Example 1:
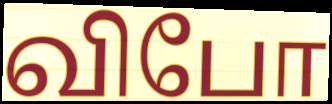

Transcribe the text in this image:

விபோ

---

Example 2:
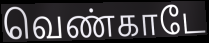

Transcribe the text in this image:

வெண்காடே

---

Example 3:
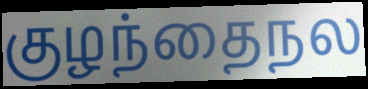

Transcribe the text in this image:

குழந்தைநல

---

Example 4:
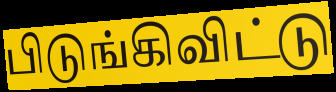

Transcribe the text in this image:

பிடுங்கிவிட்டு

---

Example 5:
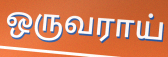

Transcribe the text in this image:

ஒருவராய்